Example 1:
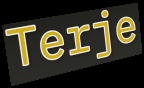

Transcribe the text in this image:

Terje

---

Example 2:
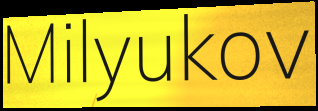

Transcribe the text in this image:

Milyukov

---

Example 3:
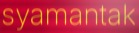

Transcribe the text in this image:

syamantak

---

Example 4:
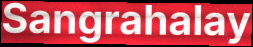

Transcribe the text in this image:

Sangrahalay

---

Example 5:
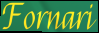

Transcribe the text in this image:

Fornari